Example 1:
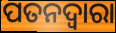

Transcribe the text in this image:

ପତନଦ୍ଵାରା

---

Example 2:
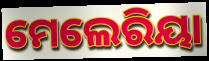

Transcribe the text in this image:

ମେଲେରିୟା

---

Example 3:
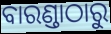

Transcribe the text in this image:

ବାରଣ୍ଡାଠାରୁ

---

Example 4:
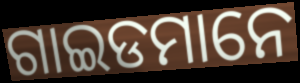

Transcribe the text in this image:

ଗାଇଡମାନେ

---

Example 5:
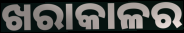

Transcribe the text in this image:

ଖରାକାଳର